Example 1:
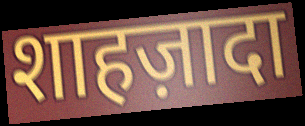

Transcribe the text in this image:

शाहज़ादा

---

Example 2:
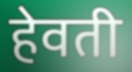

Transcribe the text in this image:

हेवती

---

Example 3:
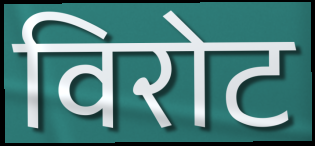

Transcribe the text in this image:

विरोट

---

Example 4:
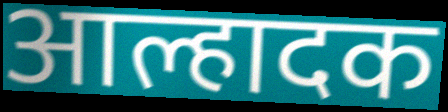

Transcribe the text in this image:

आल्हादक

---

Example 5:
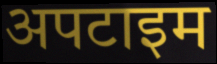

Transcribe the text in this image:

अपटाइम